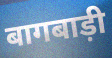
बागबाड़ी